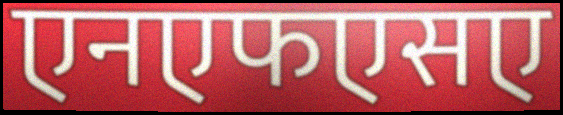
एनएफएसए